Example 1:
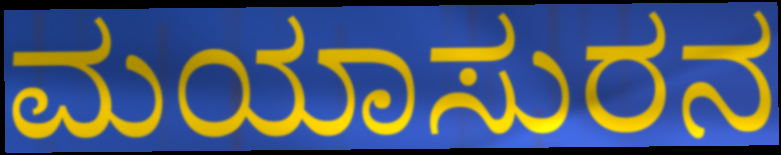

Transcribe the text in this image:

ಮಯಾಸುರನ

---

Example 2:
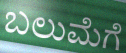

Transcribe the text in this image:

ಬಲುಮೆಗೆ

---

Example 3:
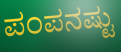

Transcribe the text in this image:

ಪಂಪನಷ್ಟು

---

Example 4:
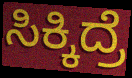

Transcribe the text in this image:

ಸಿಕ್ಕಿದ್ರೆ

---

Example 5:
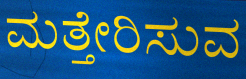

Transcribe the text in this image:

ಮತ್ತೇರಿಸುವ